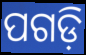
ପଗଡ଼ି